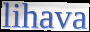
lihava